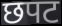
छपट